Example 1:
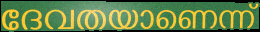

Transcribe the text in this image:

ദേവതയാണെന്ന്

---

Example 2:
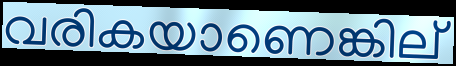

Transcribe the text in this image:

വരികയാണെങ്കില്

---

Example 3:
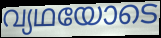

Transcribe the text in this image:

വ്യഥയോടെ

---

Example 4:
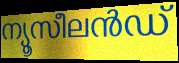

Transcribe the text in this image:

ന്യൂസീലൻഡ്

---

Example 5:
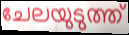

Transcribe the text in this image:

ചേലയുടുത്ത്